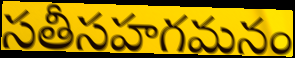
సతీసహగమనం